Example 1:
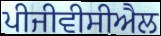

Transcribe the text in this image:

ਪੀਜੀਵੀਸੀਐਲ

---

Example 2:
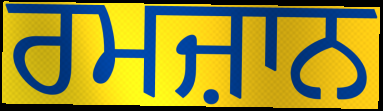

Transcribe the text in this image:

ਰਮਜ਼ਾਨ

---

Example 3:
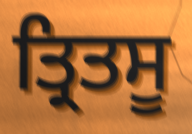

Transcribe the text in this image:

ਤ੍ਰਿਤਸੂ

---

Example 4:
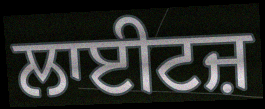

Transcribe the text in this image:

ਲਾਈਟਜ਼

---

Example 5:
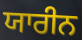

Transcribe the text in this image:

ਯਾਰੀਨ